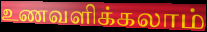
உணவளிக்கலாம்